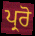
ਪ੍ਰਰੋ